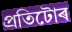
প্ৰতিটোৰ